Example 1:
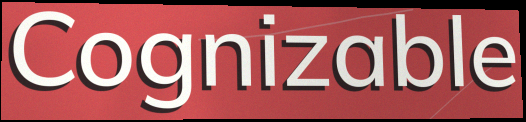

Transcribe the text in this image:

Cognizable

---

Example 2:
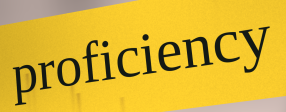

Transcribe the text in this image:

proficiency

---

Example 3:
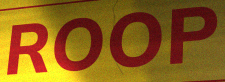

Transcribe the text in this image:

ROOP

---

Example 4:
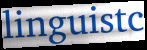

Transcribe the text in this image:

linguistc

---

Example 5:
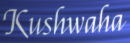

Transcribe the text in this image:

Kushwaha